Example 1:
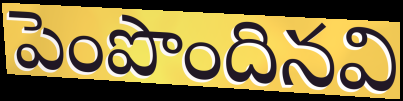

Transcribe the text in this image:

పెంపొందినవి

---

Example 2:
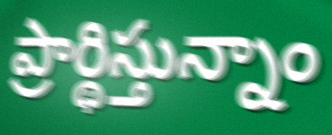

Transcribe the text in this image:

ప్రార్థిస్తున్నాం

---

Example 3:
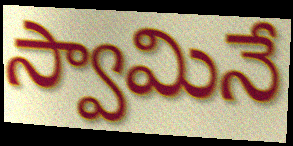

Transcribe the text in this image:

స్వామినే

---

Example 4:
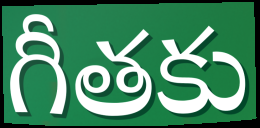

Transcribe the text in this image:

గీతకు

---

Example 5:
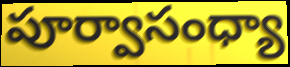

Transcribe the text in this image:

పూర్వాసంధ్యా